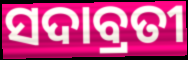
ସଦାବ୍ରତୀ